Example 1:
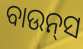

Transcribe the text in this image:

ବାଉନ୍‌ସ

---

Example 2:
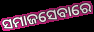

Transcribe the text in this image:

ସମାଜସେବାରେ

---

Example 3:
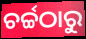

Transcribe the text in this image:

ଚର୍ଚ୍ଚଠାରୁ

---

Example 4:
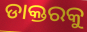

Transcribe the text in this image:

ଡାକ୍ତରକୁ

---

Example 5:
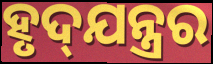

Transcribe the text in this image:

ହୃଦ୍‍ଯନ୍ତ୍ରର